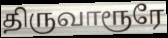
திருவாரூரே